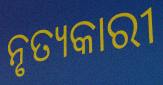
ନୃତ୍ୟକାରୀ